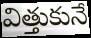
విత్తుకునే